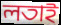
লতাই